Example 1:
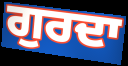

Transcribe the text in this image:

ਗੁਰਦਾ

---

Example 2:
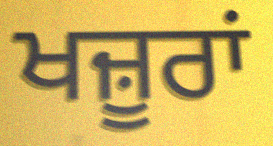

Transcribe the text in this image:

ਖਜ਼ੂਰਾਂ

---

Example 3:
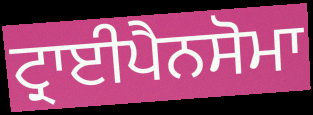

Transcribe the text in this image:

ਟ੍ਰਾਈਪੈਨਸੋਮਾ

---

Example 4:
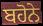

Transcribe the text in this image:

ਬਹੋਨੇ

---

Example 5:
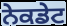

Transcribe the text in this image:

ਨੇਕਡੇਟ